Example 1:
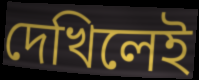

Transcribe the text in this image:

দেখিলেই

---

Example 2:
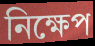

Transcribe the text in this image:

নিক্ষেপ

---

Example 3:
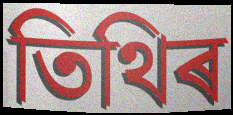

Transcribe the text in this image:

তিথিৰ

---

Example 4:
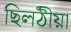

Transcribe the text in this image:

ছিলঠীয়া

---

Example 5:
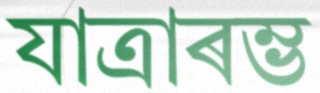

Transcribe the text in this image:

যাত্ৰাৰম্ভ